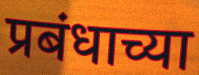
प्रबंधाच्या